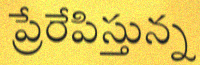
ప్రేరేపిస్తున్న